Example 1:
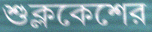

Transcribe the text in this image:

শুক্লকেশের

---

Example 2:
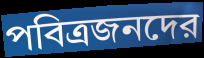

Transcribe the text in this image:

পবিত্রজনদের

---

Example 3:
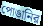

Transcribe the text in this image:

পোঙানির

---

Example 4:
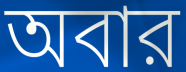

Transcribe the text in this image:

অবার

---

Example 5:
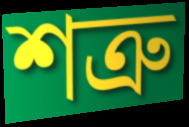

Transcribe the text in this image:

শত্রু